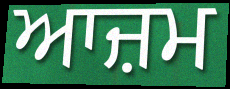
ਆਜ਼ਮ